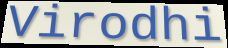
Virodhi